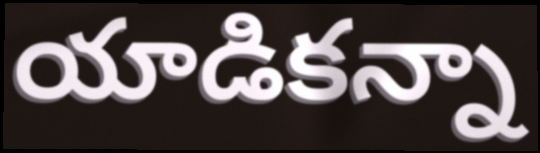
యాడికన్నా